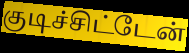
குடிச்சிட்டேன்